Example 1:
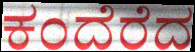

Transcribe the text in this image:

ಕಂದೆರೆದ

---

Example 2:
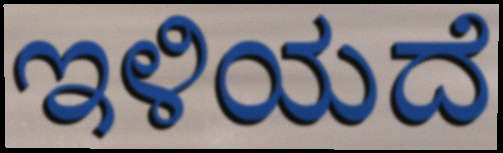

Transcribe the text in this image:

ಇಳಿಯದೆ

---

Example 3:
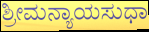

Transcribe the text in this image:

ಶ್ರೀಮನ್ಯಾಯಸುಧಾ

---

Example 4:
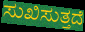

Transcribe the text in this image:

ಸುಖಿಸುತ್ತದೆ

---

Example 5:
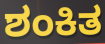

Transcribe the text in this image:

ಶಂಕಿತ